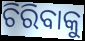
ଚିରିବାକୁ